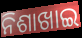
ନିଶାଖାଇ